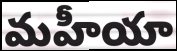
మహీయా